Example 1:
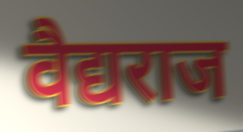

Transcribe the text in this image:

वैद्यराज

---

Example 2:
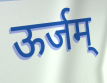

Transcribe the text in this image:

ऊर्जम्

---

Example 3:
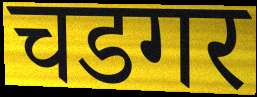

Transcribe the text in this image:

चडगर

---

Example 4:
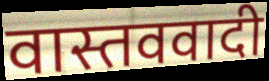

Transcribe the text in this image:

वास्तववादी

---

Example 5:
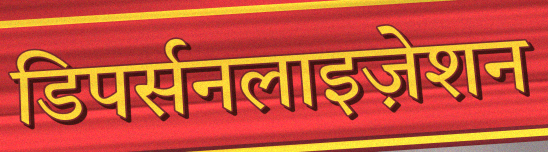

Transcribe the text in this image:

डिपर्सनलाइज़ेशन